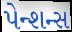
પેન્શન્સ